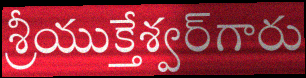
శ్రీయుక్తేశ్వర్‌గారు